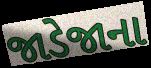
જાડેજાના